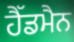
ਹੈੱਡਮੈਨ